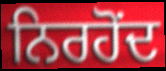
ਨਿਰਹੋਂਦ